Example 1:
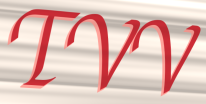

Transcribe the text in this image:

TVV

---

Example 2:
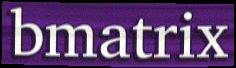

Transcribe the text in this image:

bmatrix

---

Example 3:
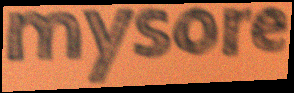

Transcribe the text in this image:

mysore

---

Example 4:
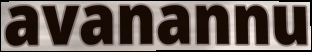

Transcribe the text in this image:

avanannu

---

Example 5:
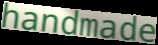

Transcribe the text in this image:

handmade